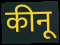
कीनू